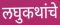
लघुकथांचे